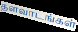
தளவாடங்கள்